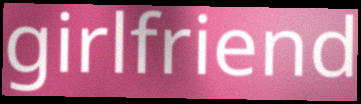
girlfriend